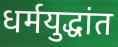
धर्मयुद्धांत